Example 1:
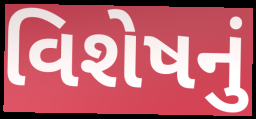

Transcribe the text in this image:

વિશેષનું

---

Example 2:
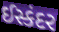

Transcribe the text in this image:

ઈસ્કંદર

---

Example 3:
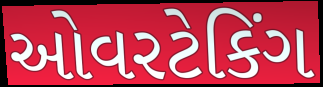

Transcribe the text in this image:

ઓવરટેકિંગ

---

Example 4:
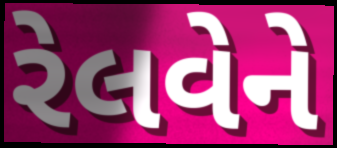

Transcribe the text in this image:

રેલવેને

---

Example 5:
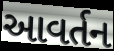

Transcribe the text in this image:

આવર્તન